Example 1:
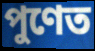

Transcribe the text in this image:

পুণেত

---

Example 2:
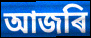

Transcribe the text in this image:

আজৰি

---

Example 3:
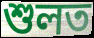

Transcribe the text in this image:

শুলত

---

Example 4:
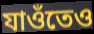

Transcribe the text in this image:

যাওঁতেও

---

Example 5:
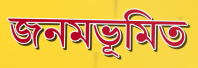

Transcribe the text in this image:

জনমভূমিত